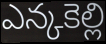
ఎన్కకెల్లి